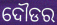
ଦୌଡର